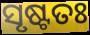
ସୃଷ୍ଟତଃ